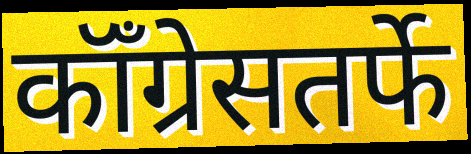
कॉँग्रेसतर्फे